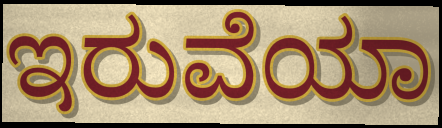
ಇರುವೆಯಾ